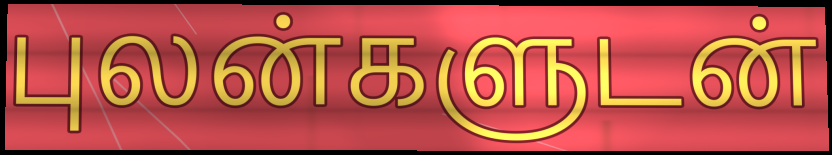
புலன்களுடன்